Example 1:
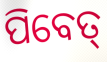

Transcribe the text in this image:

ପିବେତ୍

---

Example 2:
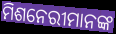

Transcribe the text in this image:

ମିଶନେରୀମାନଙ୍କ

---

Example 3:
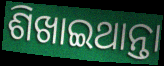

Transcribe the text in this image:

ଶିଖାଇଥାନ୍ତା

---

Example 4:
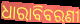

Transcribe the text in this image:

ଧାରାବିବରଣୀ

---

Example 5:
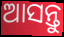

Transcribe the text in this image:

ଆସନ୍ତୁ